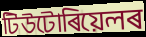
টিউটোৰিয়েলৰ